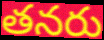
తనరు